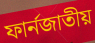
ফার্নজাতীয়